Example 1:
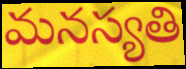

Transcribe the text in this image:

మనస్యతి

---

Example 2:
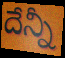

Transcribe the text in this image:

దేన్నీ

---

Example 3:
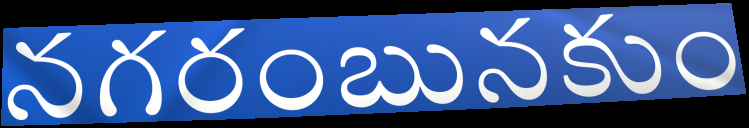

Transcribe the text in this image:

నగరంబునకుం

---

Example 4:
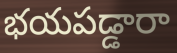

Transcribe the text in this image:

భయపడ్డారా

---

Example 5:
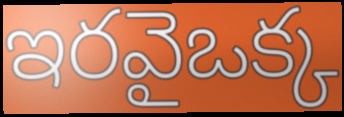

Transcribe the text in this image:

ఇరవైఒక్క